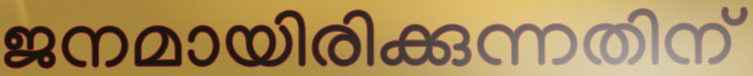
ജനമായിരിക്കുന്നതിന്